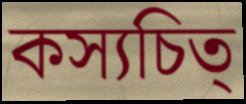
কস্যচিত্